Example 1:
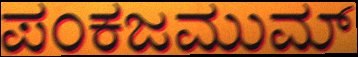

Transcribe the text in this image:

ಪಂಕಜಮುಮ್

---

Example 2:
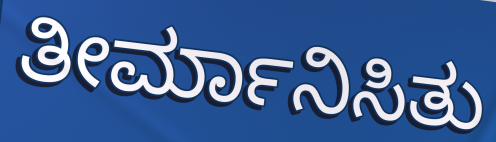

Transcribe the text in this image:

ತೀರ್ಮಾನಿಸಿತು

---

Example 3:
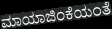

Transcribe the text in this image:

ಮಾಯಾಜಿಂಕೆಯಂತೆ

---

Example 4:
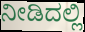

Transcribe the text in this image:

ನೀಡಿದಲ್ಲಿ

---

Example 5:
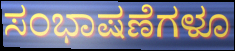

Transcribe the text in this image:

ಸಂಭಾಷಣೆಗಳೂ